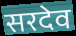
सरदेव